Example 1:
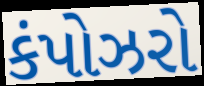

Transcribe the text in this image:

કંપોઝરો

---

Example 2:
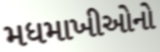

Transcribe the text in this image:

મધમાખીઓનો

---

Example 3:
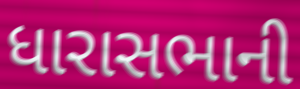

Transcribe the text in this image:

ધારાસભાની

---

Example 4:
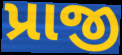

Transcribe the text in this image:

પ્રાજી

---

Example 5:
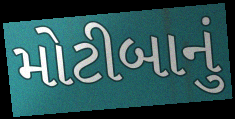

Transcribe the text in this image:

મોટીબાનું